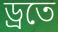
ড্রতে